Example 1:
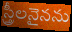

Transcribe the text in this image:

స్త్రీలనైనను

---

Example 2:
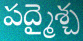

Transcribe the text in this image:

పద్మైశ్చ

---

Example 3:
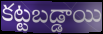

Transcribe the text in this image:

కట్టబడ్డాయి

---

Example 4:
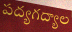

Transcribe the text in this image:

పద్యగద్యాల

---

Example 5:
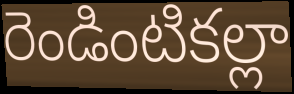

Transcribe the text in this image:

రెండింటికల్లా